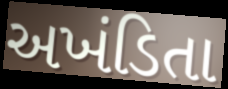
અખંડિતા